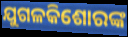
ଯୁଗଳକିଶୋରଙ୍କ